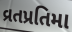
વ્રતપ્રતિમા